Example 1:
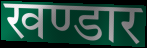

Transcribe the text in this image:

खण्डार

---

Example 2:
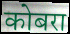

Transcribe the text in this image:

कोबरा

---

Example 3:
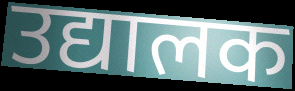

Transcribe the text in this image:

उद्यालक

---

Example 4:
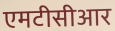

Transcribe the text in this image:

एमटीसीआर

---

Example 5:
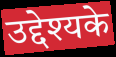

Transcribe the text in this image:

उद्देश्यके